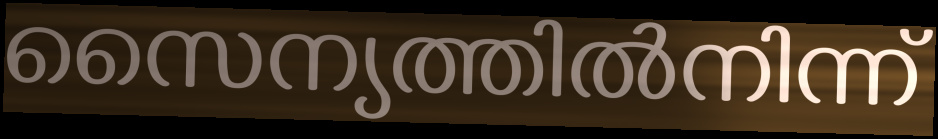
സൈന്യത്തിൽനിന്ന്